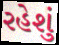
રહેશું